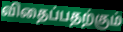
விதைப்பதற்கும்